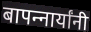
बापन्नार्यांनी